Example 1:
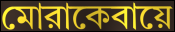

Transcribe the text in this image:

মোরাকেবায়ে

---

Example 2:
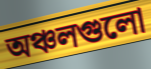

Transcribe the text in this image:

অঞ্চলগুলো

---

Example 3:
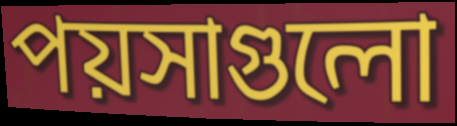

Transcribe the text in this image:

পয়সাগুলো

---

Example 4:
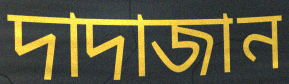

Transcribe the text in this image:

দাদাজান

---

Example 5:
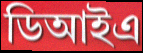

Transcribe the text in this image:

ডিআইএ